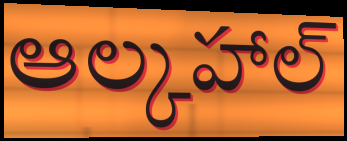
ఆల్కహాల్